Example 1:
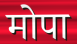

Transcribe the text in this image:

मोपा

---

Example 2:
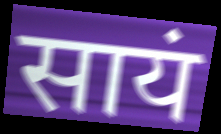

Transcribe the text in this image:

सायं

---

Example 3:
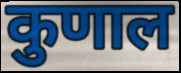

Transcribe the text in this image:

कुणाल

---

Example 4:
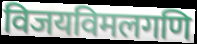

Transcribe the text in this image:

विजयविमलगणि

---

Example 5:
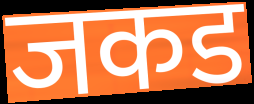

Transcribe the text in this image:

जकड